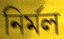
নির্মল